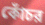
কোঁচর